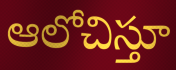
ఆలోచిస్తూ